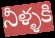
నీళ్ళకి